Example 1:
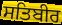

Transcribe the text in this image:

ਸਤਿਬੀਰ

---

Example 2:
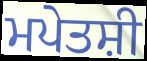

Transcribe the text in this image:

ਮਪੇਤਸ਼ੀ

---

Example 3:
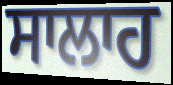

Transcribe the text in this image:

ਸਾਲਾਹ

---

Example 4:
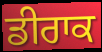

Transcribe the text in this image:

ਡੀਰਾਕ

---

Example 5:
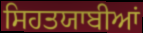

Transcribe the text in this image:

ਸਿਹਤਯਾਬੀਆਂ